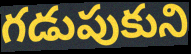
గడుపుకుని